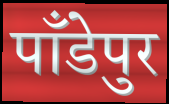
पाँडेपुर